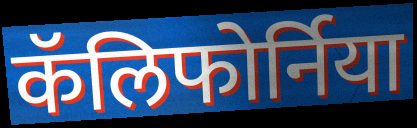
कॅलिफोर्निया